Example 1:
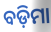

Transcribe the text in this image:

ବଡ଼ିମା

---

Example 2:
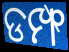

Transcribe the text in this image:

ଡମ୍ଫ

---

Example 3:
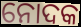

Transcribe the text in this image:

ନୋଦକ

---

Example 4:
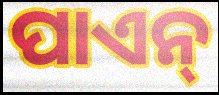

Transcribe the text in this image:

ପାଏନ୍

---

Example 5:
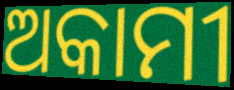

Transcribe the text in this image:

ଅକାମୀ